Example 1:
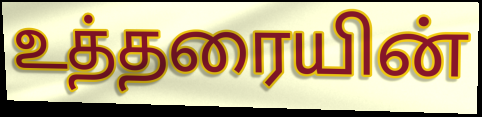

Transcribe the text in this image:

உத்தரையின்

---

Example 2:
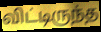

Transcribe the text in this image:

விட்டிருந்த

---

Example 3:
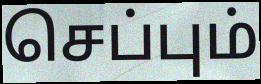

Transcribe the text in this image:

செப்பும்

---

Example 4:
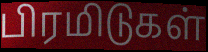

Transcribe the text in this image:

பிரமிடுகள்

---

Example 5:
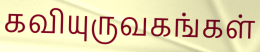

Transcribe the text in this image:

கவியுருவகங்கள்